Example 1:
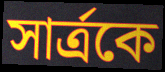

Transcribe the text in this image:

সার্ত্রকে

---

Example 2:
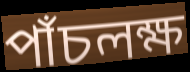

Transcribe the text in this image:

পাঁচলক্ষ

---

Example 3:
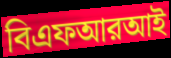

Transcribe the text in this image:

বিএফআরআই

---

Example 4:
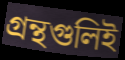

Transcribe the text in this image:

গ্রন্থগুলিই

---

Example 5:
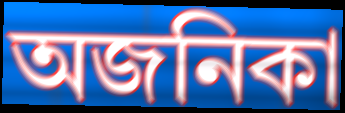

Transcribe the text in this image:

অজনিকা